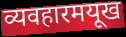
व्यवहारमयूख